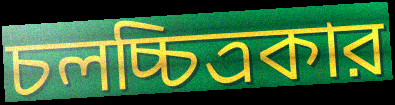
চলচ্চিত্রকার